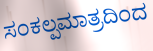
ಸಂಕಲ್ಪಮಾತ್ರದಿಂದ